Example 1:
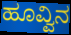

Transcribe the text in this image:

ಹೂವ್ವಿನ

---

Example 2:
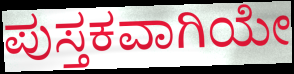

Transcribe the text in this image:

ಪುಸ್ತಕವಾಗಿಯೇ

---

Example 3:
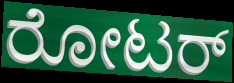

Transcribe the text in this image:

ರೋಟರ್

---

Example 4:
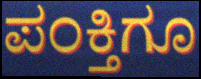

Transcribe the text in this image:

ಪಂಕ್ತಿಗೂ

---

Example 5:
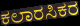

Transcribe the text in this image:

ಕಲಾರಸಿಕರ